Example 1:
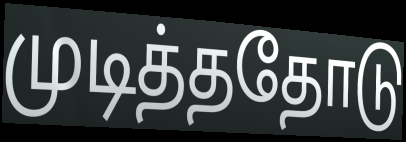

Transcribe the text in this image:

முடித்ததோடு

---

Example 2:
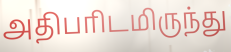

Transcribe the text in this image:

அதிபரிடமிருந்து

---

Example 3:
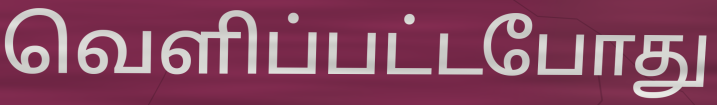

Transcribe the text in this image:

வெளிப்பட்டபோது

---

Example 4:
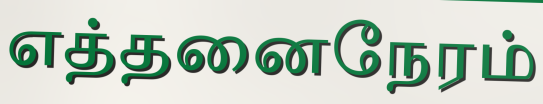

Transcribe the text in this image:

எத்தனைநேரம்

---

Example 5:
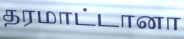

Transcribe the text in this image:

தரமாட்டானா